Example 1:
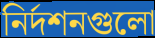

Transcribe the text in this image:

নির্দশনগুলো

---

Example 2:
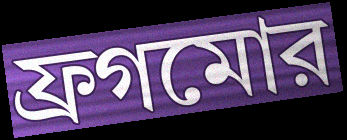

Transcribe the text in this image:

ফ্রগমোর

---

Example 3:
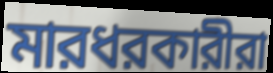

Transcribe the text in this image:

মারধরকারীরা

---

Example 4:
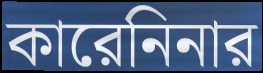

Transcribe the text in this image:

কারেনিনার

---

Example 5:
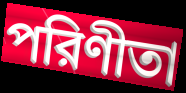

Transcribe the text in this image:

পরিণীতা